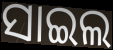
ସାଇଲ